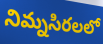
నిమ్నసిరలలో